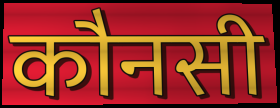
कौनसी